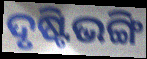
ଦୃଷ୍ଟିଭଙ୍ଗି